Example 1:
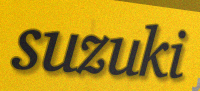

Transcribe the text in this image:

suzuki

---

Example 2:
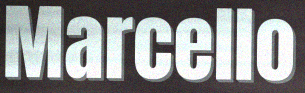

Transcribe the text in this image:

Marcello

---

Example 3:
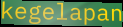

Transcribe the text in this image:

kegelapan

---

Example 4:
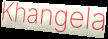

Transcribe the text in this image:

Khangela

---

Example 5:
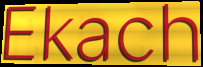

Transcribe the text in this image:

Ekach